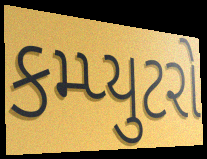
કમ્પ્યુટરો